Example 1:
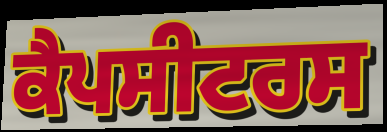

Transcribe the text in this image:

ਕੈਪਸੀਟਰਸ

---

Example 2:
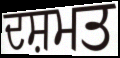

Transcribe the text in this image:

ਦਸ਼ਮਤ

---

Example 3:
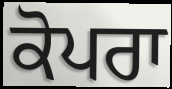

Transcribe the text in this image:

ਕੋਪਰਾ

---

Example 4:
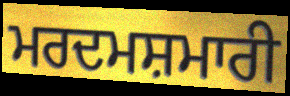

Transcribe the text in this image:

ਮਰਦਮਸ਼ਮਾਰੀ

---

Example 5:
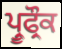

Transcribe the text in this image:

ਪ੍ਰੂਫ੍ਰੌਕ